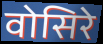
वोसिरे